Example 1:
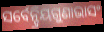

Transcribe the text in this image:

ସର୍ବେନ୍ଦ୍ରିୟଗୁଣାଭାସଂ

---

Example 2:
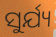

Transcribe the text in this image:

ସୁର୍ଯ୍ୟ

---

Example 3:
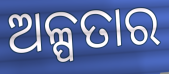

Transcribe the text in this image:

ଅଳ୍ପତାର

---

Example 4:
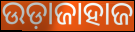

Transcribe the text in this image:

ଉଡ଼ାଜାହାଜ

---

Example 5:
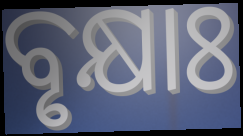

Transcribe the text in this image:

ବୃକ୍ଷାଃ